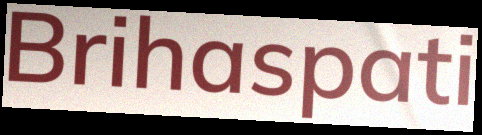
Brihaspati